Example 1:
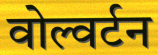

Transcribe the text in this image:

वोल्वर्टन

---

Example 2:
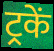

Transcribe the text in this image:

ट्रकें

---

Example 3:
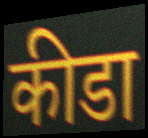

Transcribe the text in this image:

कीडा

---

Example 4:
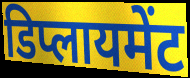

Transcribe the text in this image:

डिप्लायमेंट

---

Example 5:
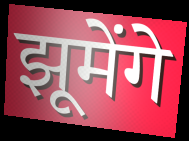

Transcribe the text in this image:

झूमेंगे